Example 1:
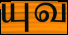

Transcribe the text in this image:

யுவ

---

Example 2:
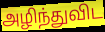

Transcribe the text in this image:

அழிந்துவிட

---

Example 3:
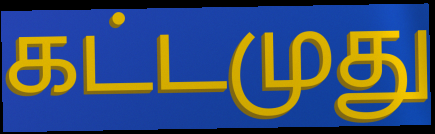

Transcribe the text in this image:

கட்டமுது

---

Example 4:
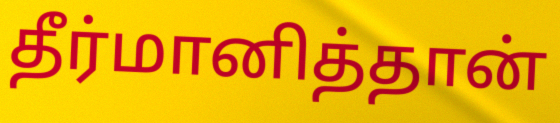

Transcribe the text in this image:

தீர்மானித்தான்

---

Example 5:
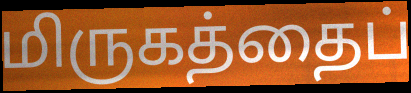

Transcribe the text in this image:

மிருகத்தைப்